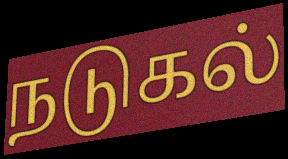
நடுகல்